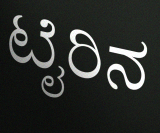
ಟೈರಿನ